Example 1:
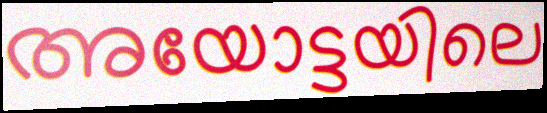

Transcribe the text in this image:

അയോട്ടയിലെ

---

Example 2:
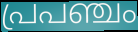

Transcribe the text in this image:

പ്രപഞ്ചം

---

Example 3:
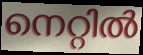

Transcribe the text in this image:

നെറ്റിൽ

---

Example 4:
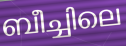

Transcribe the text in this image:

ബീച്ചിലെ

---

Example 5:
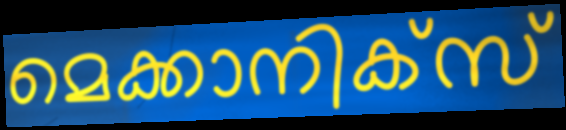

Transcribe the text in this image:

മെക്കാനിക്സ്